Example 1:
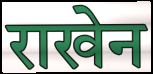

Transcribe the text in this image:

राखेन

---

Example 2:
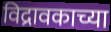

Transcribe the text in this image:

विद्रावकाच्या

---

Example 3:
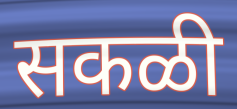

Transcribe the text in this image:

सकळी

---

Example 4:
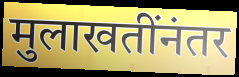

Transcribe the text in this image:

मुलाखतींनंतर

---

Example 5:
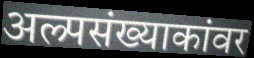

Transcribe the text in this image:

अल्पसंख्याकांवर